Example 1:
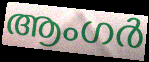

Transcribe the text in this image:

ആംഗർ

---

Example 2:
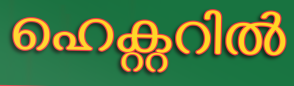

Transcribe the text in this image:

ഹെക്റ്ററിൽ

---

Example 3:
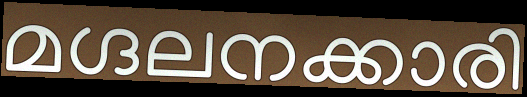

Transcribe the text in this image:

മഗ്ദലനക്കാരി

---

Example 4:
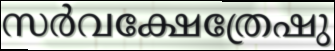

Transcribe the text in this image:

സർവക്ഷേത്രേഷു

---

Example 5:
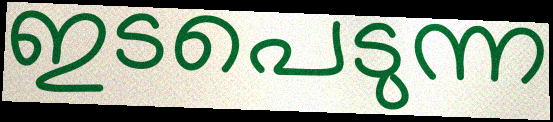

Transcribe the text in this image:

ഇടപെടുന്ന